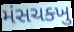
મંસચક્ખુ